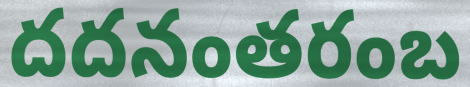
దదనంతరంబ